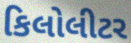
કિલોલીટર